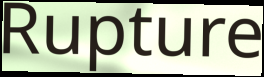
Rupture